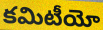
కమిటీయో